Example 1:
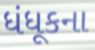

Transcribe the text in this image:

ધંધૂકના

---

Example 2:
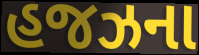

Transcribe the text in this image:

હજઝના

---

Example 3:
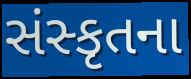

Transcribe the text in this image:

સંસ્કૃતના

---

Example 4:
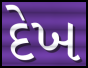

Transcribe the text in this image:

દેખ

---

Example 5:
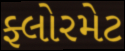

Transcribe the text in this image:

ફ્લોરમેટ